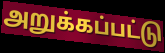
அறுக்கப்பட்டு